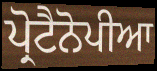
ਪ੍ਰੋਟੈਨੋਪੀਆ